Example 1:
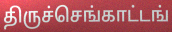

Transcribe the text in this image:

திருச்செங்காட்டங்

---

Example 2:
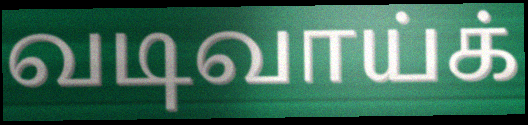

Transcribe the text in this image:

வடிவாய்க்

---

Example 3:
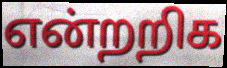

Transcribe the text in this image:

என்றறிக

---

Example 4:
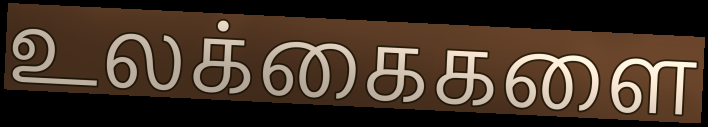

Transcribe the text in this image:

உலக்கைகளை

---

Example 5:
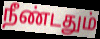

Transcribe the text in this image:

நீண்டதும்